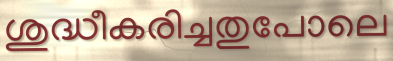
ശുദ്ധീകരിച്ചതുപോലെ